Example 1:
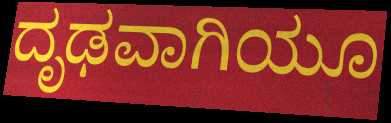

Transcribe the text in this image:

ದೃಢವಾಗಿಯೂ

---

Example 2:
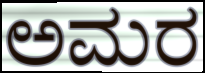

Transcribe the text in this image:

ಅಮರ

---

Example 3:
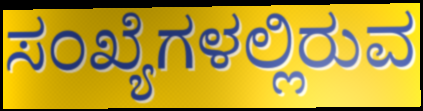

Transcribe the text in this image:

ಸಂಖ್ಯೆಗಳಲ್ಲಿರುವ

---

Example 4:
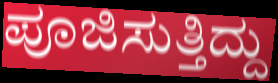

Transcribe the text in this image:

ಪೂಜಿಸುತ್ತಿದ್ದು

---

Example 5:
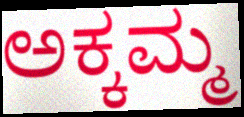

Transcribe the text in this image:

ಅಕ್ಕಮ್ಮ